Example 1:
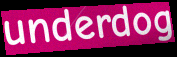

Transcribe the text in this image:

underdog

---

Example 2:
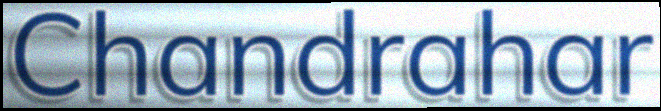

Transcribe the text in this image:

Chandrahar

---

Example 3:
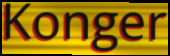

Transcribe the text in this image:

Konger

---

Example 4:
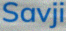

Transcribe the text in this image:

Savji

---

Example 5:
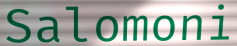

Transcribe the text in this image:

Salomoni